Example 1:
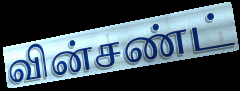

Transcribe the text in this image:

வின்சண்ட்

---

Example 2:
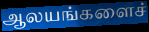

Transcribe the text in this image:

ஆலயங்களைச்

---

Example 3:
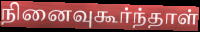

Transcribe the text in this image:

நினைவுகூர்ந்தாள்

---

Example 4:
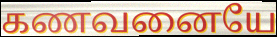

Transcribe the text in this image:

கணவனையே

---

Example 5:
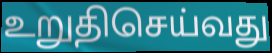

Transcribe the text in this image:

உறுதிசெய்வது